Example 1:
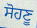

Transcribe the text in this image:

ਸੋਹਣੂ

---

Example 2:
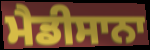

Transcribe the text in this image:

ਮੈਡੀਸਾਨਾ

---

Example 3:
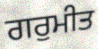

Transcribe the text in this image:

ਗਰੁਮੀਤ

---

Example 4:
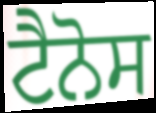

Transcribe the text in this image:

ਟੈਨੋਸ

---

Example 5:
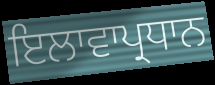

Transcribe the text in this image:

ਇਲਾਵਾਪ੍ਰਧਾਨ